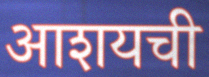
आशयची